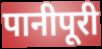
पानीपूरी